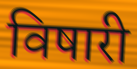
विषारी